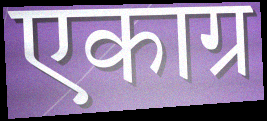
एकाग्र